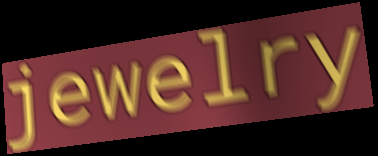
jewelry